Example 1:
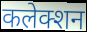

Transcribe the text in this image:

कलेक्शन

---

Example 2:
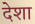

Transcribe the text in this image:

देशा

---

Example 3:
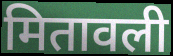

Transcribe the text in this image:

मितावली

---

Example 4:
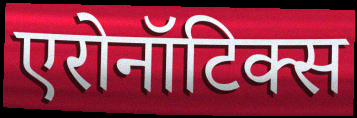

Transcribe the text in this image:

एरोनॉटिक्स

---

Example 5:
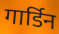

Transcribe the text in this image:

गार्डिन